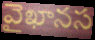
వైఖానస